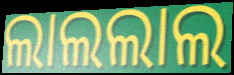
ଲାଲଲାଲ